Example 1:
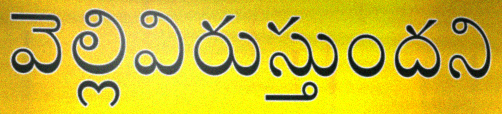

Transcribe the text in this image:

వెల్లివిరుస్తుందని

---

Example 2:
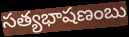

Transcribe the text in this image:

సత్యభాషణంబు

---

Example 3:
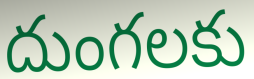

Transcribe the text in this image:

దుంగలకు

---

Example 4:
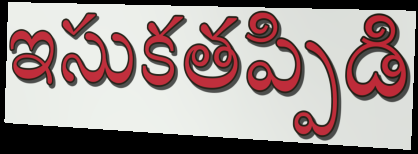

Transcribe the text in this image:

ఇసుకతప్పిడి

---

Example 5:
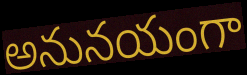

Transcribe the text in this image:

అనునయంగా